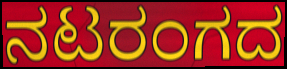
ನಟರಂಗದ